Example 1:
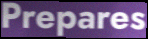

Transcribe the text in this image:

Prepares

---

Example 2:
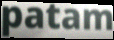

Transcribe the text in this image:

patam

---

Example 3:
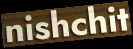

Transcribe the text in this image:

nishchit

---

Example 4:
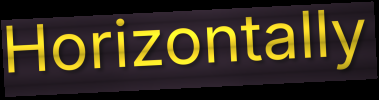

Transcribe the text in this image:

Horizontally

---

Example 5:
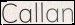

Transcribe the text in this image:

Callan